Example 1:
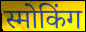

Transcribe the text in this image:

स्‍मोकिंग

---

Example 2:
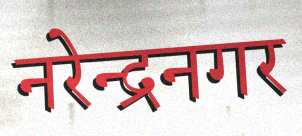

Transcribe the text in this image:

नरेन्द्रनगर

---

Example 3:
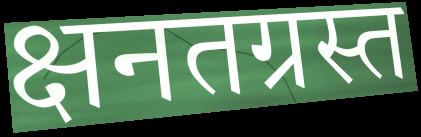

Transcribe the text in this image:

क्षनतग्रस्त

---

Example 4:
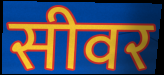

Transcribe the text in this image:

सीवर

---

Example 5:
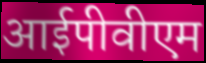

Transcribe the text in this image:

आईपीवीएम